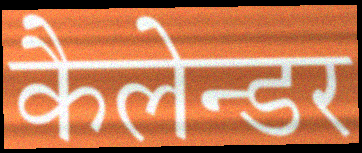
कैलेन्डर